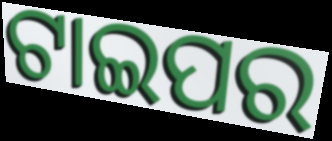
ଟାଇପର